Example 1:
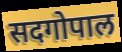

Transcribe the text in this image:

सदगोपाल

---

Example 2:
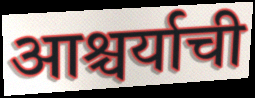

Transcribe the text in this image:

आश्चर्याची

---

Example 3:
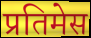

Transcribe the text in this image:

प्रतिमेस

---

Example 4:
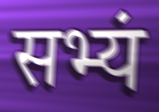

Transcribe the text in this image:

सभ्यं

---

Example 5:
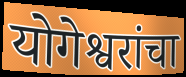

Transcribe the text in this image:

योगेश्वरांचा